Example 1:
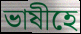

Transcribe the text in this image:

ভাষীহে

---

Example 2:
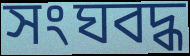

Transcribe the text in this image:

সংঘবদ্ধ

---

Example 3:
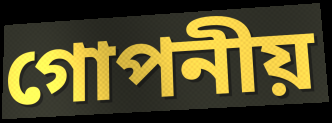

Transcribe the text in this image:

গোপনীয়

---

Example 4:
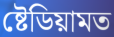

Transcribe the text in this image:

ষ্টেডিয়ামত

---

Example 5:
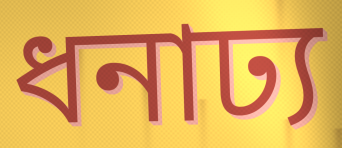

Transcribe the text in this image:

ধনাঢ্য